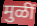
मुळीं